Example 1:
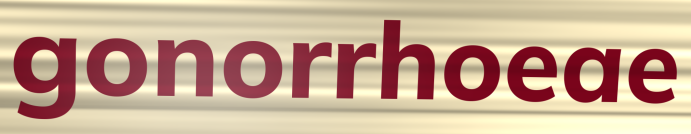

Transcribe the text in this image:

gonorrhoeae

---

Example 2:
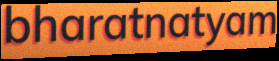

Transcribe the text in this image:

bharatnatyam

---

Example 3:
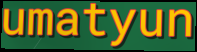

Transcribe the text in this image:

umatyun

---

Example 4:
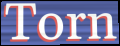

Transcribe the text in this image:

Torn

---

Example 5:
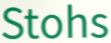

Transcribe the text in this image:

Stohs